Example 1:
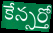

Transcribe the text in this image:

కేన్సర్తో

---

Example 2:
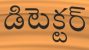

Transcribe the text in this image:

డిటెక్టర్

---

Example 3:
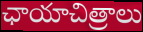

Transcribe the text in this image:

ఛాయాచిత్రాలు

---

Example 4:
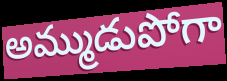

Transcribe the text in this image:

అమ్ముడుపోగా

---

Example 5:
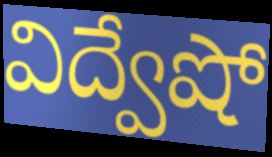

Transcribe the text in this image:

విద్వేషో